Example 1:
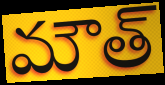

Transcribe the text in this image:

మౌత్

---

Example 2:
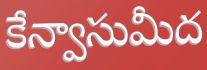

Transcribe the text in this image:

కేన్వాసుమీద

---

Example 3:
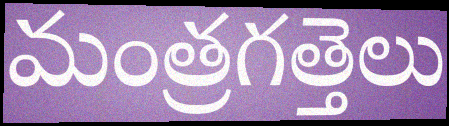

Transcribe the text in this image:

మంత్రగత్తెలు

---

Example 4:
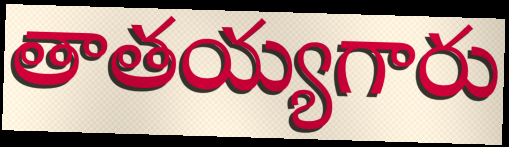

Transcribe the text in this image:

తాతయ్యగారు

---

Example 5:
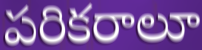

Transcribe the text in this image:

పరికరాలూ